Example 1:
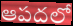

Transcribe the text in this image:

ఆపదలో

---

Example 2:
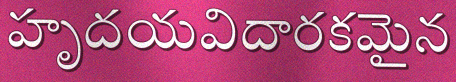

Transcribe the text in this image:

హృదయవిదారకమైన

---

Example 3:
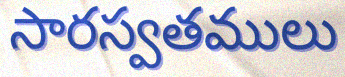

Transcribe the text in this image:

సారస్వతములు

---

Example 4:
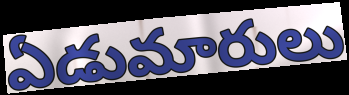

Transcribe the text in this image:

ఏడుమారులు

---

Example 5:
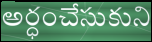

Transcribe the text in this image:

అర్ధంచేసుకుని